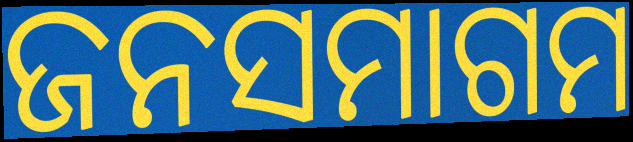
ଜନସମାଗମ